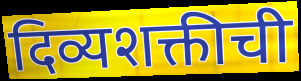
दिव्यशक्तीची